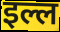
इल्ल